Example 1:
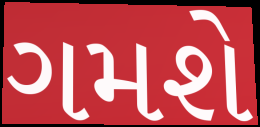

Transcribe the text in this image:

ગમશે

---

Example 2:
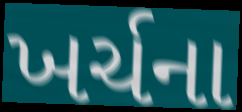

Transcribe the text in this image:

ખર્ચના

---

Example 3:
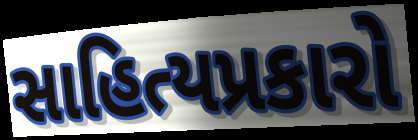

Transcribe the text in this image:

સાહિત્યપ્રકારો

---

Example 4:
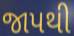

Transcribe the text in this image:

જાપથી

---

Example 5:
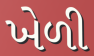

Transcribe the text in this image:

ખેળી